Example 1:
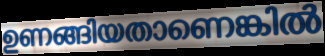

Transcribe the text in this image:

ഉണങ്ങിയതാണെങ്കിൽ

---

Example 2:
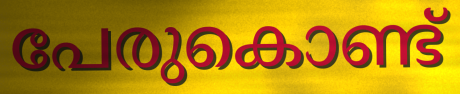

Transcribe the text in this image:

പേരുകൊണ്ട്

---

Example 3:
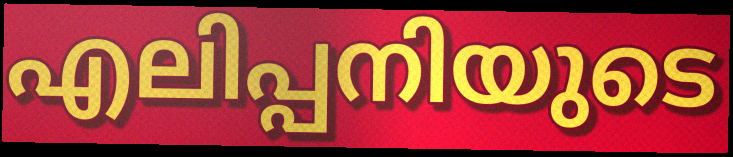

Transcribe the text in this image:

എലിപ്പനിയുടെ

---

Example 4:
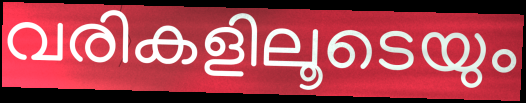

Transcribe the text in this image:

വരികളിലൂടെയും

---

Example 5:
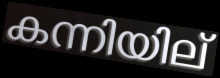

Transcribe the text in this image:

കന്നിയില്